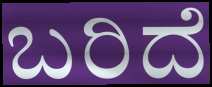
ಬರಿದೆ